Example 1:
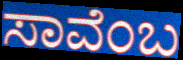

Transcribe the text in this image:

ಸಾವೆಂಬ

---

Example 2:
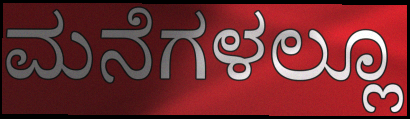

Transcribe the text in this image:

ಮನೆಗಳಲ್ಲೂ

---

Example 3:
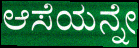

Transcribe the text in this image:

ಆಸೆಯನ್ನೇ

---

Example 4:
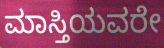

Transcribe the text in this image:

ಮಾಸ್ತಿಯವರೇ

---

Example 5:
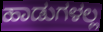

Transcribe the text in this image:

ಹಾಡುಗಳಲ್ಲ